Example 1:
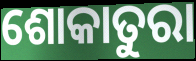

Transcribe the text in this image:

ଶୋକାତୁରା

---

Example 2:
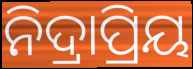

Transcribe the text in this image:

ନିଦ୍ରାପ୍ରିୟ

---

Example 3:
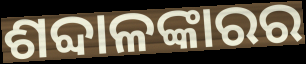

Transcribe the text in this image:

ଶବ୍ଦାଳଙ୍କାରର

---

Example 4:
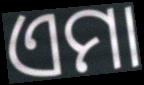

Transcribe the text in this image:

ଏମା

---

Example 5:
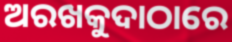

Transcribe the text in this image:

ଅରଖକୁଦାଠାରେ